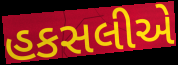
હકસલીએ